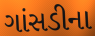
ગાંસડીના